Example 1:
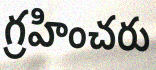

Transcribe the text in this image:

గ్రహించరు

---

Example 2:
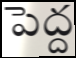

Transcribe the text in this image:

పెద్ద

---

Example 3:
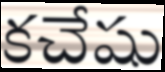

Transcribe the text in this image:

కచేషు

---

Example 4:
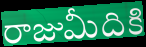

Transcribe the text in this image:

రాజుమీదికి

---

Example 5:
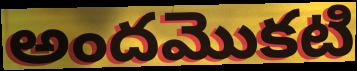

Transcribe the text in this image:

అందమొకటి